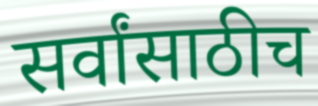
सर्वांसाठीच